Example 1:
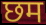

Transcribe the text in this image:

छम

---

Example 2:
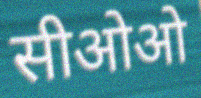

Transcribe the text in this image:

सीओओ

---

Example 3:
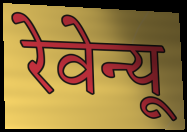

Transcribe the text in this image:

रेवेन्यू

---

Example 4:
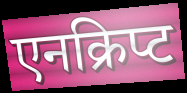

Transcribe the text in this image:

एनक्रिप्ट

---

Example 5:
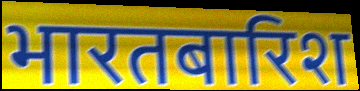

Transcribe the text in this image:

भारतबारिश